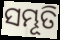
ସମ୍ଭୂତି